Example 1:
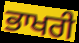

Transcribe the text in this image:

ਭਾਖਰੀ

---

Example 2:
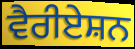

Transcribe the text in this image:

ਵੈਰੀਏਸ਼ਨ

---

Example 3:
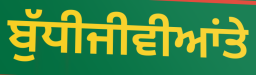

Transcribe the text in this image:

ਬੁੱਧੀਜੀਵੀਆਂਤੇ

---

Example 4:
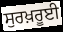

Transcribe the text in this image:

ਸੁਰਖ਼ਰੂਈ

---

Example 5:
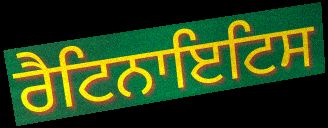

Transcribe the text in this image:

ਰੈਟਿਨਾਇਟਿਸ